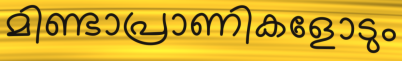
മിണ്ടാപ്രാണികളോടും